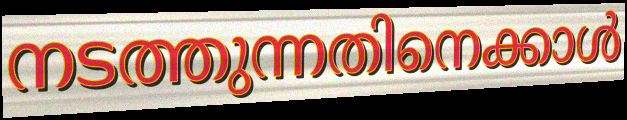
നടത്തുന്നതിനെക്കാൾ